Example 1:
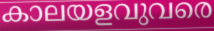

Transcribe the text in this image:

കാലയളവുവരെ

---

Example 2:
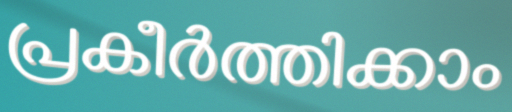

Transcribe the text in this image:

പ്രകീർത്തിക്കാം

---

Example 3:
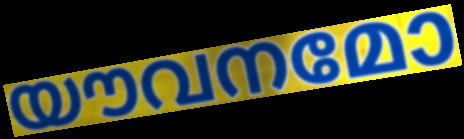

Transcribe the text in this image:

യൗവനമോ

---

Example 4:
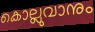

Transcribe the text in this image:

കൊല്ലുവാനും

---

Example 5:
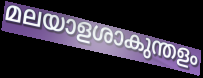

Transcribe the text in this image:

മലയാളശാകുന്തളം